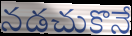
నడచుకొనే